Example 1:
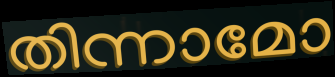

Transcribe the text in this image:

തിന്നാമോ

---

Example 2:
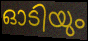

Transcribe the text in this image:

ഓടിയും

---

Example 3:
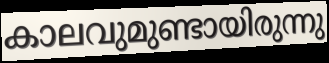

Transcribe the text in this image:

കാലവുമുണ്ടായിരുന്നു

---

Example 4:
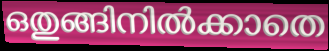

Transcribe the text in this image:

ഒതുങ്ങിനിൽക്കാതെ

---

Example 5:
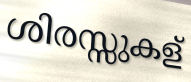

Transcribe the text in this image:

ശിരസ്സുകള്